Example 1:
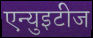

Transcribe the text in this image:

एन्युइटीज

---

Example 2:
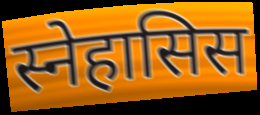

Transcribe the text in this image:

स्नेहासिस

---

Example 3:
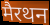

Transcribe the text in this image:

मैरथन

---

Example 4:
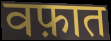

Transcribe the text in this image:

वफ़ात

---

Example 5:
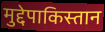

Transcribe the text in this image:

मुद्देपाकिस्तान